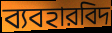
ব্যবহারবিদ